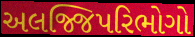
અલજ્જિપરિભોગો